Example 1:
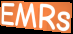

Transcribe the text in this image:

EMRs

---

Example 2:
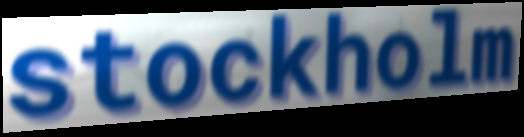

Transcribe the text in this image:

stockholm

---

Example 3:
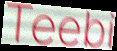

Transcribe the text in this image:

Teebi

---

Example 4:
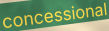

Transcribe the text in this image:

concessional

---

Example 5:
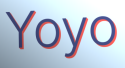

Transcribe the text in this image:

Yoyo